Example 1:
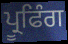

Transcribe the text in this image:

ਪ੍ਰੂਫਿੰਗ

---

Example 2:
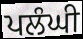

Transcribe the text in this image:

ਪਲੰਘੀ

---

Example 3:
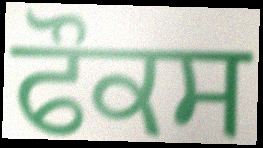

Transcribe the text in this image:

ਫੌਕਸ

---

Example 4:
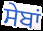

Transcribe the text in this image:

ਸੇਬਾਂ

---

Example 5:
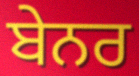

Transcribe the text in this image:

ਬੇਨਰ